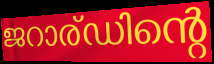
ജറാര്ഡിന്റെ